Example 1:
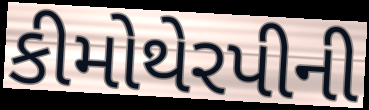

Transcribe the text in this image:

કીમોથેરપીની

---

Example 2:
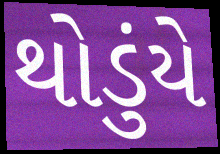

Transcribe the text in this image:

થોડુંયે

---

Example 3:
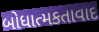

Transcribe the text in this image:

બોધાત્મકતાવાદ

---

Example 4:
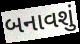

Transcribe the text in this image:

બનાવશું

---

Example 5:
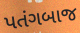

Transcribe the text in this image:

પતંગબાજ